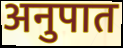
अनुपात